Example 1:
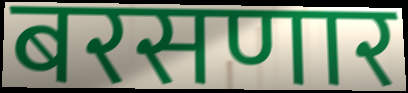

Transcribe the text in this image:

बरसणार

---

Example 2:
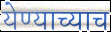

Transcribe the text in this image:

येण्याच्याच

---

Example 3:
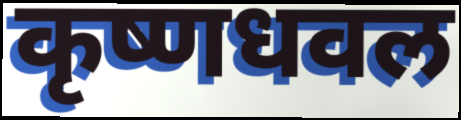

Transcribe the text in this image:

कृष्णधवल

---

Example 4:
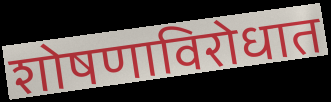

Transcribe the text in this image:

शोषणाविरोधात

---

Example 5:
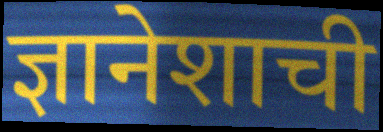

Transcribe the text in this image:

ज्ञानेशाची